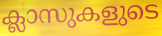
ക്ലാസുകളുടെ